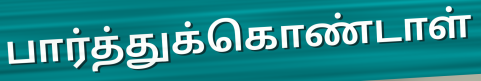
பார்த்துக்கொண்டாள்